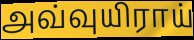
அவ்வுயிராய்